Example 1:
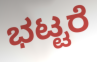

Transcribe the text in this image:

ಭಟ್ಟರೆ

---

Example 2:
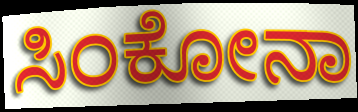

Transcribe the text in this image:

ಸಿಂಕೋನಾ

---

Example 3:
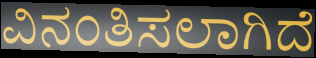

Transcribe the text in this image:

ವಿನಂತಿಸಲಾಗಿದೆ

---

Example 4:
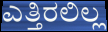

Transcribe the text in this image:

ಎತ್ತಿರಲಿಲ್ಲ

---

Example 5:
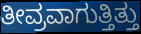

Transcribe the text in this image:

ತೀವ್ರವಾಗುತ್ತಿತ್ತು